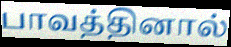
பாவத்தினால்